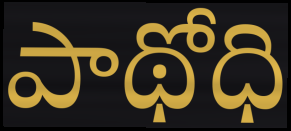
పాథోధి